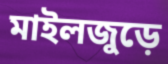
মাইলজুড়ে